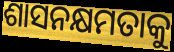
ଶାସନକ୍ଷମତାକୁ